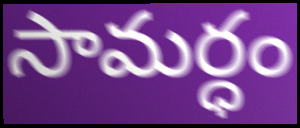
సామర్ధం